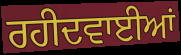
ਰਹੀਦਵਾਈਆਂ